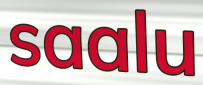
saalu